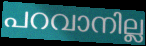
പറവാനില്ല